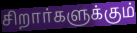
சிறார்களுக்கும்